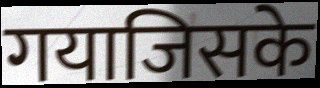
गयाजिसके